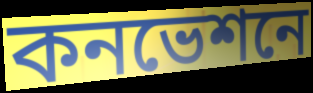
কনভেশনে